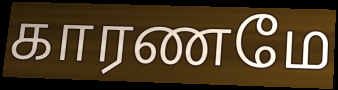
காரணமே